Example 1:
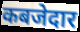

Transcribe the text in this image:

कबजेदार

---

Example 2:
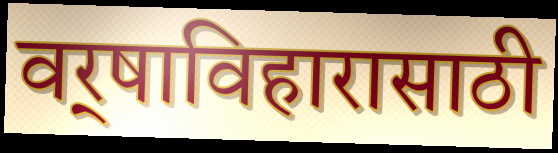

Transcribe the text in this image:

वर्षाविहारासाठी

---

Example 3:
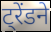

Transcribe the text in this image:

ट्रेंडने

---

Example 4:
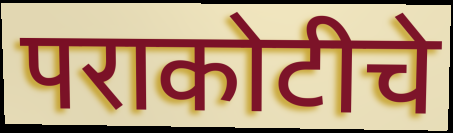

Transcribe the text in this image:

पराकोटीचे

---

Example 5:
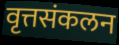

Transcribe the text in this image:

वृत्तसंकलन